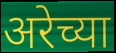
अरेच्या